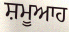
ਸ਼ਮੂਆਹ